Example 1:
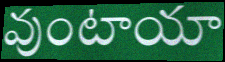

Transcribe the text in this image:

వుంటాయా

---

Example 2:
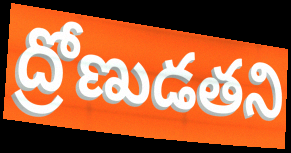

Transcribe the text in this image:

ద్రోణుడతని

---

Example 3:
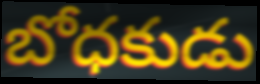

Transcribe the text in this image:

బోధకుడు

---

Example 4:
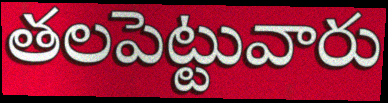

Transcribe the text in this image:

తలపెట్టువారు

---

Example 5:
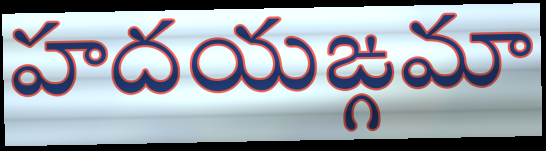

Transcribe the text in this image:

హదయఙ్గమా